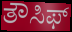
ತೌಸಿಫ್